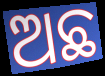
ଅଛ